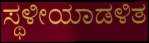
ಸ್ಥಳೀಯಾಡಳಿತ